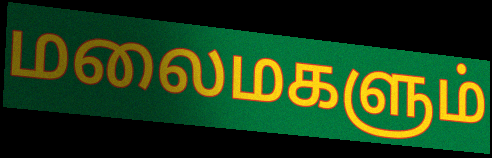
மலைமகளும்